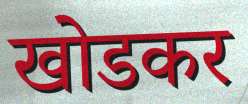
खोडकर